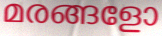
മരങ്ങളോ